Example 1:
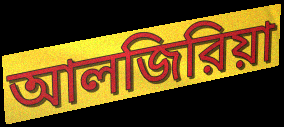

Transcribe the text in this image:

আলজিরিয়া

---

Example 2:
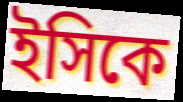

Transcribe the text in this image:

ইসিকে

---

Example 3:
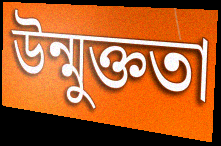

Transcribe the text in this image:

উন্মুক্ততা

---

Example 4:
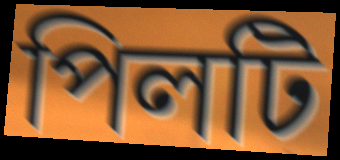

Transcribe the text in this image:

পিলটি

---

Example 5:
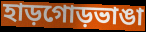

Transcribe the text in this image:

হাড়গোড়ভাঙা